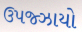
ઉપજ્ઝાયો